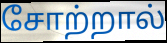
சோற்றால்